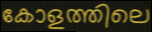
കോളത്തിലെ